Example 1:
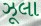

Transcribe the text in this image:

ઝૂલા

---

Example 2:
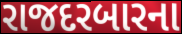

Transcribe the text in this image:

રાજદરબારના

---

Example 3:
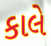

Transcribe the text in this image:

કાલે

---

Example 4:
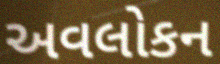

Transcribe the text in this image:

અવલોકન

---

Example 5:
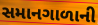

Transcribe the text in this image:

સમાનગાળાની